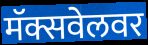
मॅक्सवेलवर